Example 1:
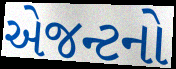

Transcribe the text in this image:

એજન્ટનો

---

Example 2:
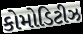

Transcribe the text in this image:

કોમોડિટીઝ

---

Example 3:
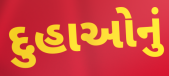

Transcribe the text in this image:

દુહાઓનું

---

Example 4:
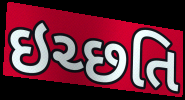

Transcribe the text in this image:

ઇચ્છતિ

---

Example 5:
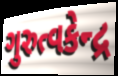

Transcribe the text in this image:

ગુરુત્વકેન્દ્ર